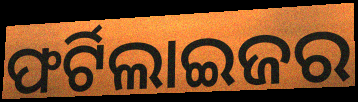
ଫର୍ଟିଲାଇଜର